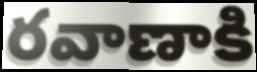
రవాణాకి